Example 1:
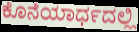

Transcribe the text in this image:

ಕೊನೆಯಾರ್ಧದಲ್ಲಿ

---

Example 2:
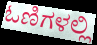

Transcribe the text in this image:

ಓಣಿಗಳಲ್ಲಿ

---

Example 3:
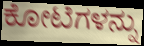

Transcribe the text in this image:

ಕೋಟೆಗಳನ್ನು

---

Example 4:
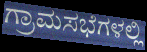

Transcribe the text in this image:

ಗ್ರಾಮಸಭೆಗಳಲ್ಲಿ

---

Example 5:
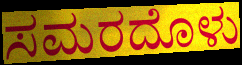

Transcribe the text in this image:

ಸಮರದೊಳು